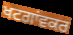
ਖਟਗਾਂਵਕਰ